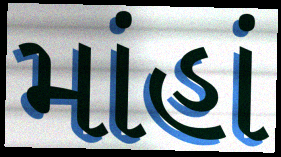
માંહાં